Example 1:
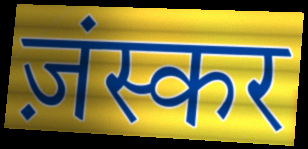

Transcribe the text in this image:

ज़ंस्कर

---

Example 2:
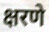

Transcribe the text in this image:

क्षरणे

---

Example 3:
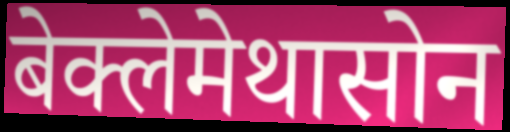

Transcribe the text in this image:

बेक्लेमेथासोन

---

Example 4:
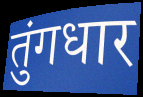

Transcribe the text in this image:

तुंगधार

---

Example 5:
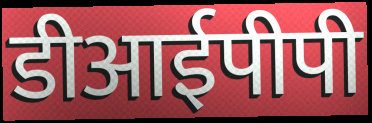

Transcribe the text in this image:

डीआईपीपी